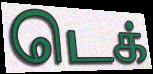
டெக்